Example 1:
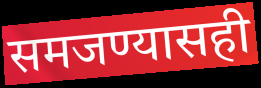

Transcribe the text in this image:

समजण्यासही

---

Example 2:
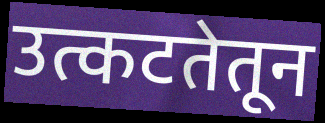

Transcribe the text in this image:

उत्कटतेतून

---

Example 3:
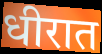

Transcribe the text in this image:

धीरात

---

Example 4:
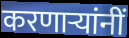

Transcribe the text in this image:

करणार्‍यांनीं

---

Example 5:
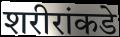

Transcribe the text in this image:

शरीरांकडे